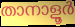
താനാളൂർ